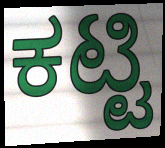
ಕಟ್ಟಿ